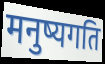
मनुष्यगति